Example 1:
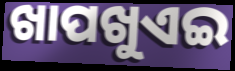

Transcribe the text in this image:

ଖାପଖୁଏଇ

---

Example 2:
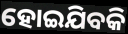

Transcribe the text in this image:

ହୋଇଯିବକି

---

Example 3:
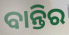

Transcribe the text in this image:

ବାନ୍ତିର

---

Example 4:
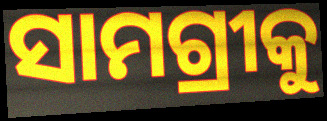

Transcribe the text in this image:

ସାମଗ୍ରୀକୁ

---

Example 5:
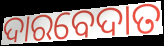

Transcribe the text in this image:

ଦାରବେଦାତ